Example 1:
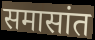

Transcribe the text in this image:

समासांत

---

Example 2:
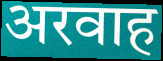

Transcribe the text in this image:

अरवाह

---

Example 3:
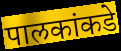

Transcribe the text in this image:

पालकांकडे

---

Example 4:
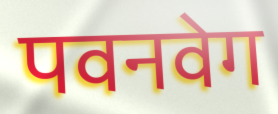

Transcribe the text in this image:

पवनवेग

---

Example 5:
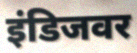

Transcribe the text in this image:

इंडिजवर